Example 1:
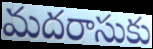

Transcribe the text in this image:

మదరాసుకు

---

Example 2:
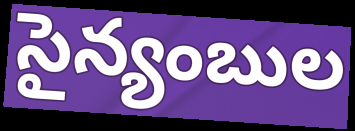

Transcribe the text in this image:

సైన్యంబుల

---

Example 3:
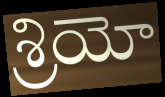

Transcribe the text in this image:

శ్రియో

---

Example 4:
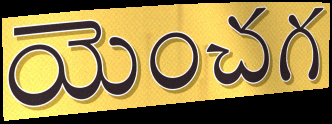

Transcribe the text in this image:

యెంచగ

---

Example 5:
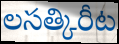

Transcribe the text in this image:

లసత్కిరీట